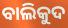
ବାଲିକୁଦ